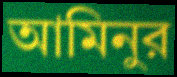
আমিনুর